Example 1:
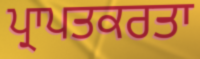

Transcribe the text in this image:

ਪ੍ਰਾਪਤਕਰਤਾ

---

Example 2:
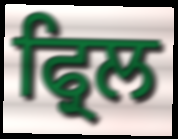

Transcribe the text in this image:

ਫ੍ਰਿਲ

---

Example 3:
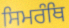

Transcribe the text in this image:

ਸਿਮਰੰਥਿ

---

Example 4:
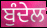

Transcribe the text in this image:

ਬੁੰਦੇਲ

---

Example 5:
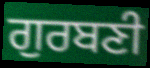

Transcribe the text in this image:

ਗੁਰਬਣੀ